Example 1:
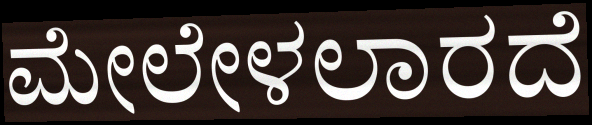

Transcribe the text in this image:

ಮೇಲೇಳಲಾರದೆ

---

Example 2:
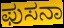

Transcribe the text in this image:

ಫುಸನಾ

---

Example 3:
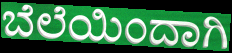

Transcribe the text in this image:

ಬೆಲೆಯಿಂದಾಗಿ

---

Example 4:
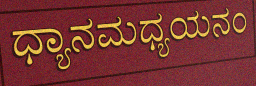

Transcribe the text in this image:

ಧ್ಯಾನಮಧ್ಯಯನಂ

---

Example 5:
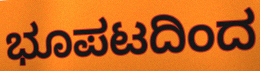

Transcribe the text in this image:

ಭೂಪಟದಿಂದ